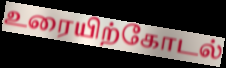
உரையிற்கோடல்